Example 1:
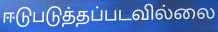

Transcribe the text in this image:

ஈடுபடுத்தப்படவில்லை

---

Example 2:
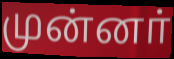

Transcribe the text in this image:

முன்னர்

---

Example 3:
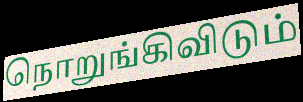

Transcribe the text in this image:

நொறுங்கிவிடும்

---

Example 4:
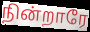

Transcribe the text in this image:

நின்றாரே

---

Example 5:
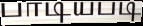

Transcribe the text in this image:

பாடியபடி